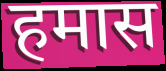
हमास